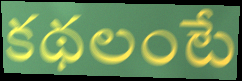
కథలంటే